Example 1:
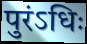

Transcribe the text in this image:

पुरंऽधिः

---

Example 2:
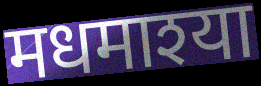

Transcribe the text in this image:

मधमाश्‍या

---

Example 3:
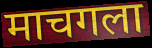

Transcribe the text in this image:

माचगला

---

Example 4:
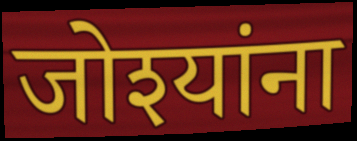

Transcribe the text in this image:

जोश्यांना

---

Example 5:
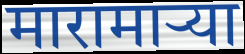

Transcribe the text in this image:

मारामार्‍या